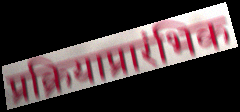
प्रक्रियाप्रारंभिक